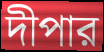
দীপার